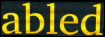
abled